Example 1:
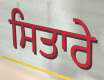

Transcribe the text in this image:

ਸਿਤਾਰੇ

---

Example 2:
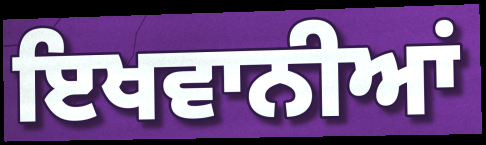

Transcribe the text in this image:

ਇਖਵਾਨੀਆਂ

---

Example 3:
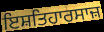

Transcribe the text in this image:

ਇਸ਼ਤਿਹਾਰਸਾਜ਼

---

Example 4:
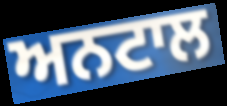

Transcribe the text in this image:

ਅਨਟਾਲ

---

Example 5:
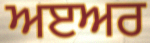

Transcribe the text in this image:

ਅੲਅਰ